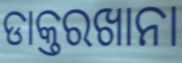
ଡାକ୍ତରଖାନା